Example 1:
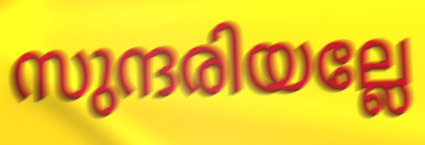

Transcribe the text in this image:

സുന്ദരിയല്ലേ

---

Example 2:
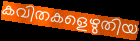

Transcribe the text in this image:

കവിതകളെഴുതിയ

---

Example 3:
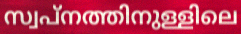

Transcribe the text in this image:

സ്വപ്നത്തിനുള്ളിലെ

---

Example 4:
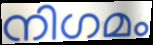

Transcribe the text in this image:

നിഗമം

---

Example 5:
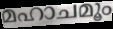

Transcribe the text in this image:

മഹാചമൂം